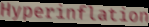
Hyperinflation